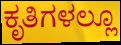
ಕೃತಿಗಳಲ್ಲೂ